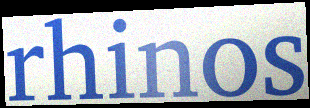
rhinos